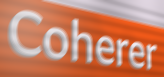
Coherer